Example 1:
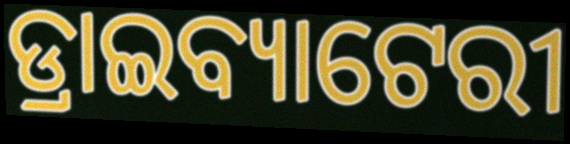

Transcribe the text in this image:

ଡ୍ରାଇବ୍ୟାଟେରୀ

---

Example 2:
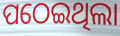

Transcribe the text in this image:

ପଠେଇଥିଲା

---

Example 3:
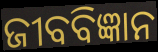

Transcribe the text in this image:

ଜୀବବିଜ୍ଞାନ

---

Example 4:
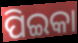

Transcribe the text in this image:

ପିଇକା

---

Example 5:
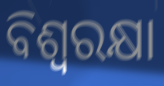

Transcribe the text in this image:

ବିଶ୍ୱରକ୍ଷା